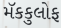
મૅકકુલોફ